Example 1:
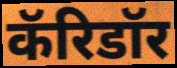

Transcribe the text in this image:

कॅरिडॉर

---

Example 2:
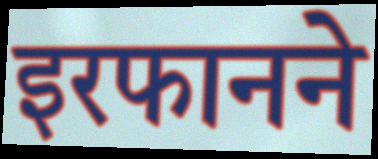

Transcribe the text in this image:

इरफानने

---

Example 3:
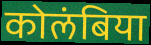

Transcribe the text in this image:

कोलंबिया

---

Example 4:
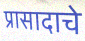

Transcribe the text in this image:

प्रासादाचे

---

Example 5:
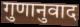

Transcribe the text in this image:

गुणानुवाद